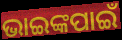
ଭାଇଙ୍କପାଇଁ